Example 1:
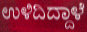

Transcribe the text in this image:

ಉಳಿದಿದ್ದಾಳೆ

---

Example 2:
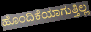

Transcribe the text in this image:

ಹೊಂದಿಕೆಯಾಗುತ್ತಿಲ್ಲ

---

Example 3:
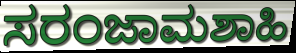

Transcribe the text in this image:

ಸರಂಜಾಮಶಾಹಿ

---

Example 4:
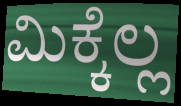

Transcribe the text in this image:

ಮಿಕ್ಕೆಲ್ಲ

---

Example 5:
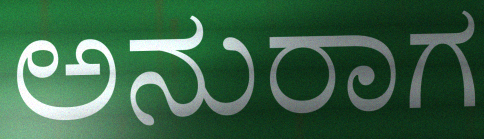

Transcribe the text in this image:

ಅನುರಾಗ